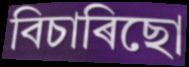
বিচাৰিছো